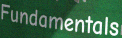
Fundamentals